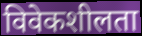
विवेकशीलता